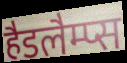
हैडलैम्प्स